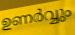
ഉണർവ്വും